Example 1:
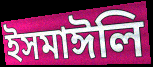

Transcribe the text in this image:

ইসমাঈলি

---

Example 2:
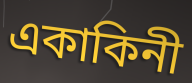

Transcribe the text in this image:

একাকিনী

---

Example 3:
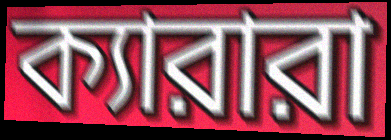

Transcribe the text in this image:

ক্যারারা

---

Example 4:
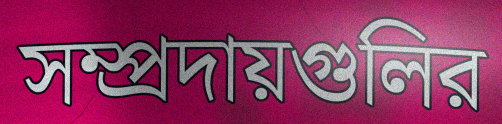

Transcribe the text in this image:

সম্প্রদায়গুলির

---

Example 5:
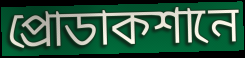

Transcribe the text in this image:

প্রোডাকশানে